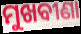
ମୁଖବୀଣା